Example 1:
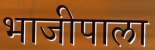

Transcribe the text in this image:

भाजीपाला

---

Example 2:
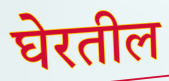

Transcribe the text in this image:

घेरतील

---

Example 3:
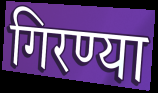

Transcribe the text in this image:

गिरण्या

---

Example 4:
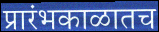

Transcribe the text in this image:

प्रारंभकाळातच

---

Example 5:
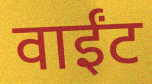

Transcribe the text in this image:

वाईंट